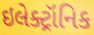
ઇલેક્ટ્રૉનિક